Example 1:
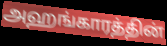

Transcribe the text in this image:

அஹங்காரத்தின்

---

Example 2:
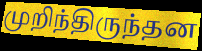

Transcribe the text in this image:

முறிந்திருந்தன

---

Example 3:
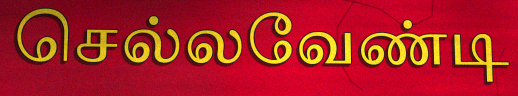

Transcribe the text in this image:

செல்லவேண்டி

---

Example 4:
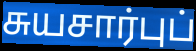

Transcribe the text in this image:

சுயசார்புப்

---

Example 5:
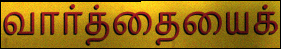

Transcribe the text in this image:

வார்த்தையைக்